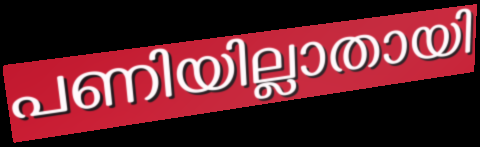
പണിയില്ലാതായി